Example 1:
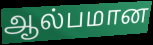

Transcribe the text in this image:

ஆல்பமான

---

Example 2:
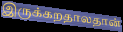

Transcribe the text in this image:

இருக்கறதாலதான்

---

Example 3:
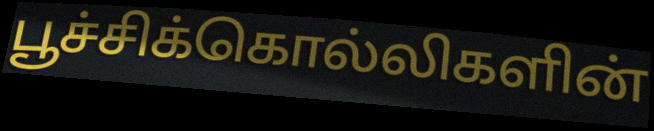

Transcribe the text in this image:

பூச்சிக்கொல்லிகளின்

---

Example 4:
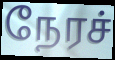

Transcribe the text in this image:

நேரச்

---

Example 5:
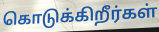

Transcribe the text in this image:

கொடுக்கிறீர்கள்